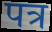
पत्र